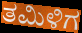
ತಮಿಳಿಗ